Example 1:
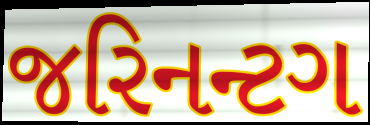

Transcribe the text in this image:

જરિનન્ટગ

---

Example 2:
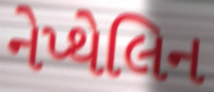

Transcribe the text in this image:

નેપ્થેલિન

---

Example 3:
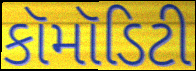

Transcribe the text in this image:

કૉમૉડિટી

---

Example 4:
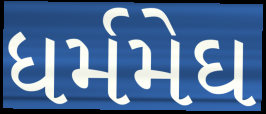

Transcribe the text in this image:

ધર્મમેઘ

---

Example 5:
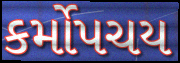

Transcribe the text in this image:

કર્મોપચય